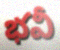
భవీ